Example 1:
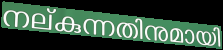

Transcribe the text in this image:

നല്‌കുന്നതിനുമായി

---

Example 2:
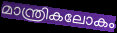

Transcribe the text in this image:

മാന്ത്രികലോകം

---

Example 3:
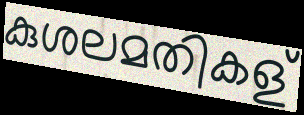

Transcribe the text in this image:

കുശലമതികള്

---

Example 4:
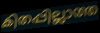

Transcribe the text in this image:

കിതപ്പില്ലാത്ത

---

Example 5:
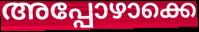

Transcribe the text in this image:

അപ്പോഴാക്കെ